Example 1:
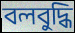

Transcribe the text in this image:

বলবুদ্ধি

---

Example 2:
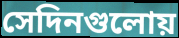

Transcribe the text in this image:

সেদিনগুলোয়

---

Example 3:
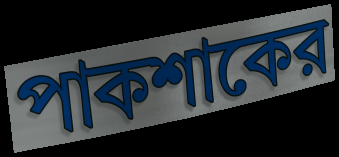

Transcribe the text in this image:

পাকশাকের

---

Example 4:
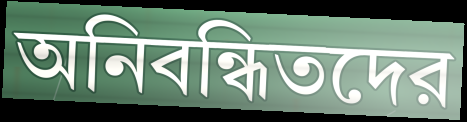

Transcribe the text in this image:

অনিবন্ধিতদের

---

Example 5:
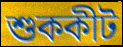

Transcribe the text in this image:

শুককীট